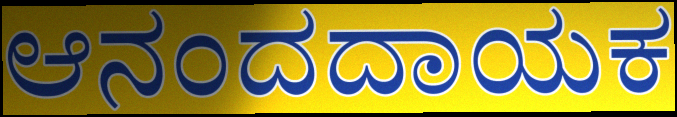
ಆನಂದದಾಯಕ